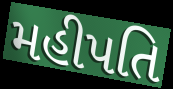
મહીપતિ